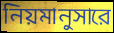
নিয়মানুসারে